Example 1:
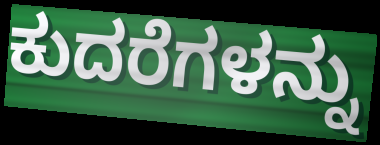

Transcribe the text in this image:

ಕುದರೆಗಳನ್ನು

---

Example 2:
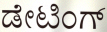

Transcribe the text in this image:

ಡೇಟಿಂಗ್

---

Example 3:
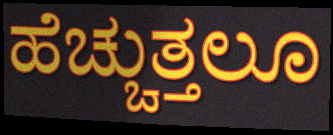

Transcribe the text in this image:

ಹೆಚ್ಚುತ್ತಲೂ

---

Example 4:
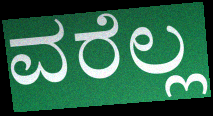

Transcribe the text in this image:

ವರೆಲ್ಲ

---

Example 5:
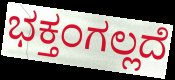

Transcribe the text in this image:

ಭಕ್ತಂಗಲ್ಲದೆ